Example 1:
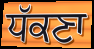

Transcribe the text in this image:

ਧੱਕਣਾ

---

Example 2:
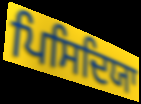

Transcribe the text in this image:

ਪਿਸਿਦਿਯਾ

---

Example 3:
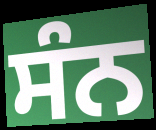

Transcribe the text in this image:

ਸੰਨ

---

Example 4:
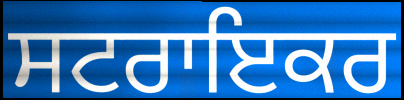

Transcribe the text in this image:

ਸਟਰਾਇਕਰ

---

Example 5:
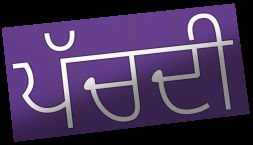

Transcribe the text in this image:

ਪੱਚਦੀ